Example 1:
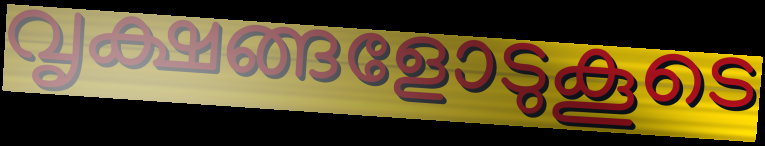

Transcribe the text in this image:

വൃക്ഷങ്ങളോടുകൂടെ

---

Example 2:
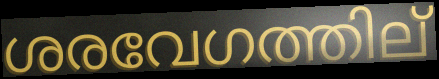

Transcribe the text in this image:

ശരവേഗത്തില്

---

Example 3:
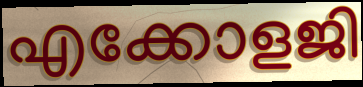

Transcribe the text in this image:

എക്കോളജി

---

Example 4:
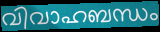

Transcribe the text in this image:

വിവാഹബന്ധം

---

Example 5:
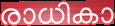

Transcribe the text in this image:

രാധികാ